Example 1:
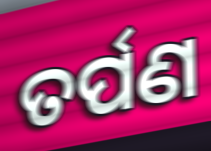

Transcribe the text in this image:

ତର୍ପଣ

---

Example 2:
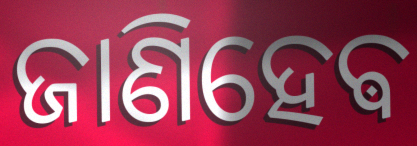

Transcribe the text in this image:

ଜାଣିହେଵ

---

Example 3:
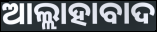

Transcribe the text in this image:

ଆଲ୍ଲାହାବାଦ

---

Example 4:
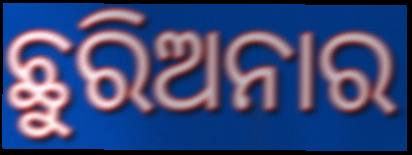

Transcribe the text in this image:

ଛୁରିଅନାର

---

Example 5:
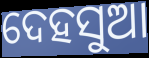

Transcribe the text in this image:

ଦେହସୁଆ